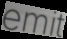
emit